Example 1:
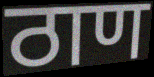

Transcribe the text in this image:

ठाण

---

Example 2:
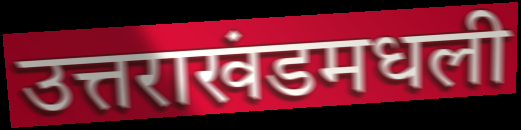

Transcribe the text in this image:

उत्तराखंडमधली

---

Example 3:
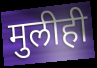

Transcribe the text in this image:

मुलीही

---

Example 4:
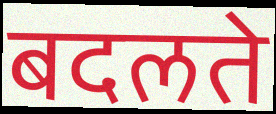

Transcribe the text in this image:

बदलते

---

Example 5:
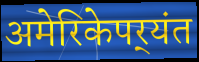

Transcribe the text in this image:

अमेरिकेपर्यंत